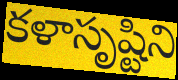
కళాసృష్టిని